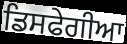
ਡਿਸਫੇਗੀਆ